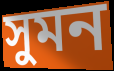
সুমন